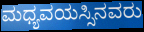
ಮಧ್ಯವಯಸ್ಸಿನವರು